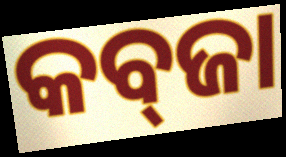
କବ୍‍ଜା